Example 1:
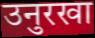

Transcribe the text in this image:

उनुरखा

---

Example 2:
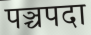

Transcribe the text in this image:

पञ्चपदा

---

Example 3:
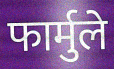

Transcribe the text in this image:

फार्मुले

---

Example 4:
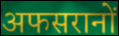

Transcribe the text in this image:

अफसरानों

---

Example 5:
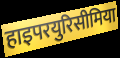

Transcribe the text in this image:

हाइपरयुरिसीमिया